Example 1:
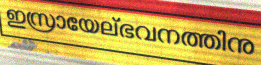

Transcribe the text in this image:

ഇസ്രായേല്ഭവനത്തിനു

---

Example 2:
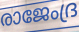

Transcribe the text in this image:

രാജേംദ്ര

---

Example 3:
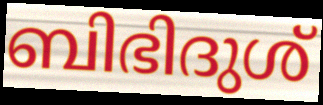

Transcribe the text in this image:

ബിഭിദുശ്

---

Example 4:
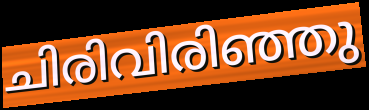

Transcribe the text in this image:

ചിരിവിരിഞ്ഞു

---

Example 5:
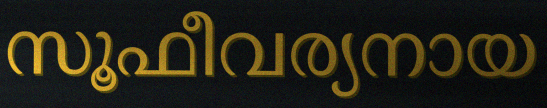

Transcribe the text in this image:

സൂഫീവര്യനായ